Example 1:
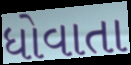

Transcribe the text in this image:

ધોવાતા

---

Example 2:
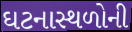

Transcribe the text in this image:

ઘટનાસ્થળોની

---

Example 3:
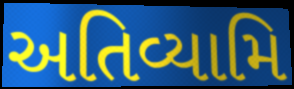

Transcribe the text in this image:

અતિવ્યામિ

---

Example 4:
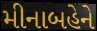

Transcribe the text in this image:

મીનાબહેને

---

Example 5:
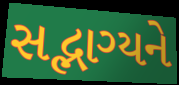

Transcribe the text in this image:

સદ્ભાગ્યને